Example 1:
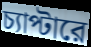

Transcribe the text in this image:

চ্যাপ্টারে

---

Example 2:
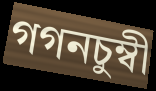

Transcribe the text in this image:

গগনচুম্বী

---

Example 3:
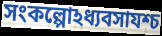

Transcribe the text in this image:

সংকল্পোঽধ্যবসাযশ্চ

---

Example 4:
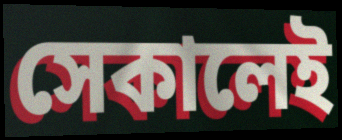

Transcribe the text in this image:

সেকালেই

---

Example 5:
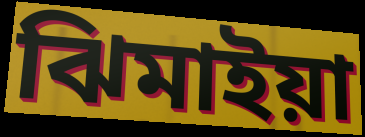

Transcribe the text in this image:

ঝিমাইয়া